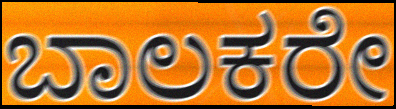
ಬಾಲಕರೇ